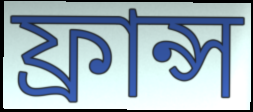
ফ্রান্স